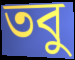
তবু